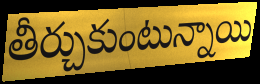
తీర్చుకుంటున్నాయి